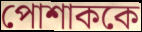
পোশাককে